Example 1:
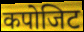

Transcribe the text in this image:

कपोजिट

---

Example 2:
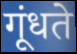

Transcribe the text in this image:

गूंधते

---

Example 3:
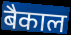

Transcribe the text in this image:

बैकाल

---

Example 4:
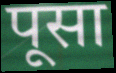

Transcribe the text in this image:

पूसा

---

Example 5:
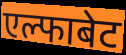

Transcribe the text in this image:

एल्फाबेट